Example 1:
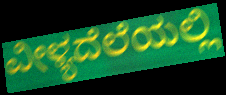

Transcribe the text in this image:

ವೀಳ್ಯದೆಲೆಯಲ್ಲಿ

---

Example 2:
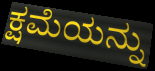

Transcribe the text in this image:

ಕ್ಷಮೆಯನ್ನು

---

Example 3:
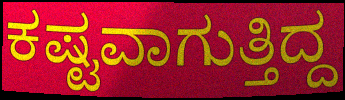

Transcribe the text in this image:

ಕಷ್ಟವಾಗುತ್ತಿದ್ದ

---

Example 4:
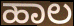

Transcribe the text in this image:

ಹಾಲ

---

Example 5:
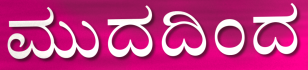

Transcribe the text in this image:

ಮುದದಿಂದ